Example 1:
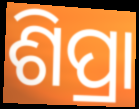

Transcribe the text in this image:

ଶିପ୍ରା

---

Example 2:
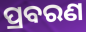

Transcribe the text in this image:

ପ୍ରବରଣ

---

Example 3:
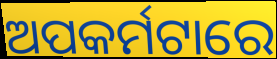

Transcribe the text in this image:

ଅପକର୍ମଟାରେ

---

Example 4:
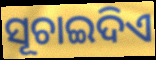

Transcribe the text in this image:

ସୂଚାଇଦିଏ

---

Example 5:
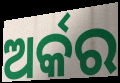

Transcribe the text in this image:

ଅର୍କର